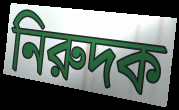
নিরুদক